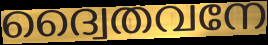
ദ്വൈതവനേ